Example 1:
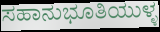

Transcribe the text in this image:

ಸಹಾನುಭೂತಿಯುಳ್ಳ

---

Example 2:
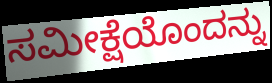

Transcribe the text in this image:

ಸಮೀಕ್ಷೆಯೊಂದನ್ನು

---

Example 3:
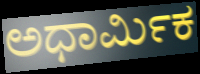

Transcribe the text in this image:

ಅಧಾರ್ಮಿಕ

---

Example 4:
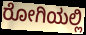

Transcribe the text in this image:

ರೋಗಿಯಲ್ಲಿ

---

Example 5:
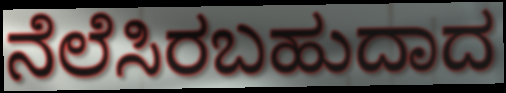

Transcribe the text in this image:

ನೆಲೆಸಿರಬಹುದಾದ